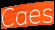
Caes